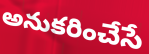
అనుకరించేసే